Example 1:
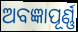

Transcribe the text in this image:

ଅବଜ୍ଞାପୂର୍ଣ୍ଣ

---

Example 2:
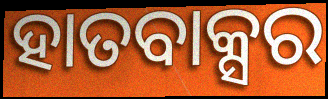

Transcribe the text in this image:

ହାତବାକ୍ସର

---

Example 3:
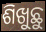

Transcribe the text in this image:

ଶିଖୁଛୁ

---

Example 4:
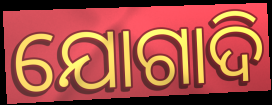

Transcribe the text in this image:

ଯୋଗାଦି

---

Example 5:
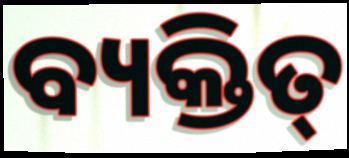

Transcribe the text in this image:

ବ୍ୟକ୍ତିତ୍